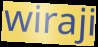
wiraji